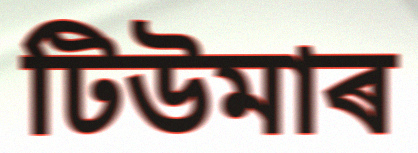
টিউমাৰ